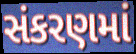
સંકરણમાં